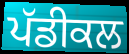
ਪੱਡੀਕਲ